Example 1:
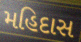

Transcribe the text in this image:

મહિદાસ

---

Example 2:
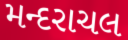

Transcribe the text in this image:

મન્દરાચલ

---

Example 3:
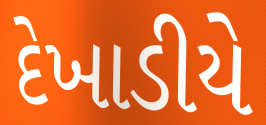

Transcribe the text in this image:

દેખાડીયે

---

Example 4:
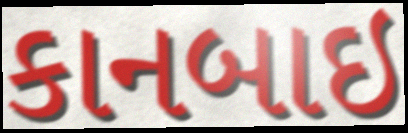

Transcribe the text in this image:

કાનબાઇ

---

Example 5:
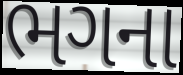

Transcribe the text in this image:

ભગના